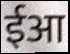
ईआ